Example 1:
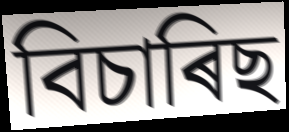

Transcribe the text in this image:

বিচাৰিছ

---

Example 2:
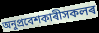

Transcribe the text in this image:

অনুপ্ৰবেশকাৰীসকলৰ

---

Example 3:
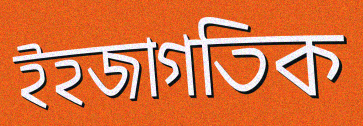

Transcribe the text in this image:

ইহজাগতিক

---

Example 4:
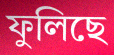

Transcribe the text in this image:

ফুলিছে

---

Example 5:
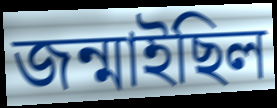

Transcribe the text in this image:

জন্মাইছিল